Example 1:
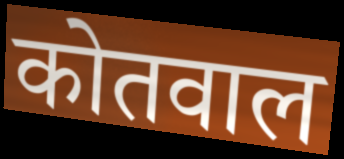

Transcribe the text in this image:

कोतवाल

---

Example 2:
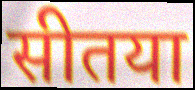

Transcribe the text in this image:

सीतया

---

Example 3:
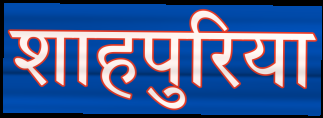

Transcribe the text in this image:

शाहपुरिया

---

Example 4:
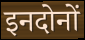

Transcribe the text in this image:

इनदोनों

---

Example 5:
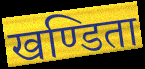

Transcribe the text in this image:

खण्डिता